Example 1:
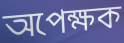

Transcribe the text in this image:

অপেক্ষক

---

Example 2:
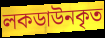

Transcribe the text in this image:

লকডাউনকৃত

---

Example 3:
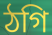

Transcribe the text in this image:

ঠগি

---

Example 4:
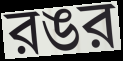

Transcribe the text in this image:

রঙর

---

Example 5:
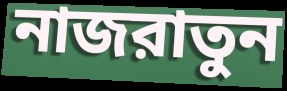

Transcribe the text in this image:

নাজরাতুন